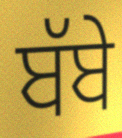
ਬੱਬੇ